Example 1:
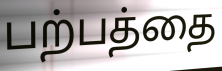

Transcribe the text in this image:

பற்பத்தை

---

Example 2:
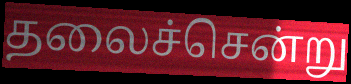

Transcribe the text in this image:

தலைச்சென்று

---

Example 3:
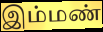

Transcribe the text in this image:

இம்மண்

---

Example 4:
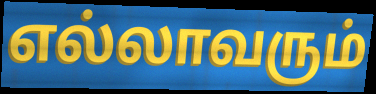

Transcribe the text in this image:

எல்லாவரும்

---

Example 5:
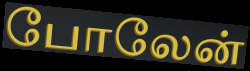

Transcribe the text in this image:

போலேன்